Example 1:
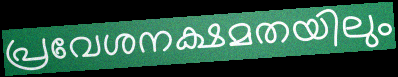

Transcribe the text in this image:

പ്രവേശനക്ഷമതയിലും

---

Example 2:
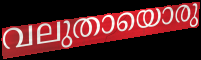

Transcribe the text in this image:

വലുതായൊരു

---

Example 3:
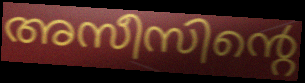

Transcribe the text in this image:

അസീസിന്റെ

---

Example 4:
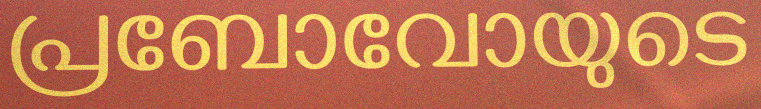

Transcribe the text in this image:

പ്രബോവോയുടെ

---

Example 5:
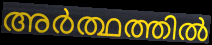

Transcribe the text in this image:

അർത്ഥത്തിൽ